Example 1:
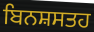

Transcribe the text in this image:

ਬਿਨਸ਼ਸਤਹ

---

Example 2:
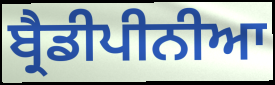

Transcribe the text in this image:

ਬ੍ਰੈਡੀਪੀਨੀਆ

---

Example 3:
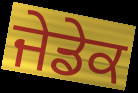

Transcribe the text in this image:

ਜੇਡੇਕ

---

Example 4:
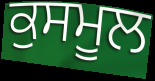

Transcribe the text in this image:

ਕੁਸਮੂਲ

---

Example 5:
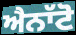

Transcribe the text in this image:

ਐਨਾੱਟੋ